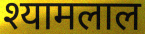
श्यामलाल